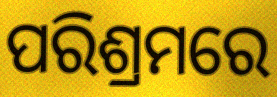
ପରିଶ୍ରମରେ